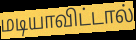
மடியாவிட்டால்